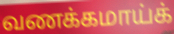
வணக்கமாய்க்